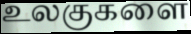
உலகுகளை